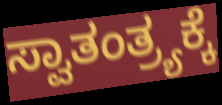
ಸ್ವಾತಂತ್ರ್ಯಕ್ಕೆ